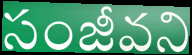
సంజీవని